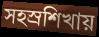
সহস্রশিখায়